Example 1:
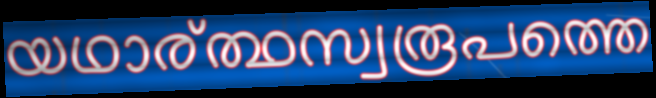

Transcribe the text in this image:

യഥാര്ത്ഥസ്വരൂപത്തെ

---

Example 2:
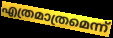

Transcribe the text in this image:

എത്രമാത്രമെന്ന്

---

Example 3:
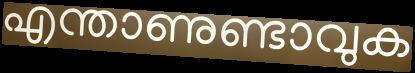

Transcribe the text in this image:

എന്താണുണ്ടാവുക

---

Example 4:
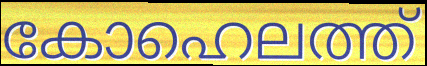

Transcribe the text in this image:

കോഹെലത്ത്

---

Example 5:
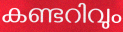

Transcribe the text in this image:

കണ്ടറിവും